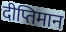
दीप्तिमान